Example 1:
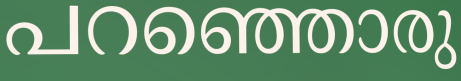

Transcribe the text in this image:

പറഞ്ഞൊരു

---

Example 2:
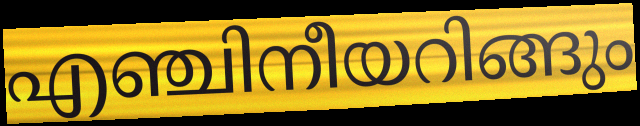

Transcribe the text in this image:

എഞ്ചിനീയറിങ്ങും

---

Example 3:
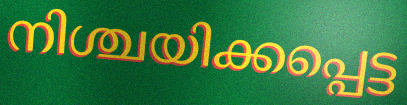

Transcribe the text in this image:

നിശ്ചയിക്കപ്പെട്ട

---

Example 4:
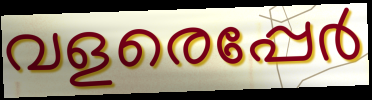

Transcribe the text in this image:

വളരെപ്പേർ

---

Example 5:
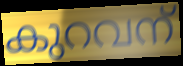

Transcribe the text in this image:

കുറവന്